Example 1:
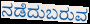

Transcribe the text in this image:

ನಡೆದುಬರುವ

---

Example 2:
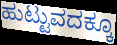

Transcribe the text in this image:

ಹುಟ್ಟುವದಕ್ಕೂ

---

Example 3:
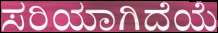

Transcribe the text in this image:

ಸರಿಯಾಗಿದೆಯೆ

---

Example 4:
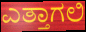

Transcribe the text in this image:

ಎತ್ತಾಗಲಿ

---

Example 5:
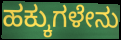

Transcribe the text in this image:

ಹಕ್ಕುಗಳೇನು